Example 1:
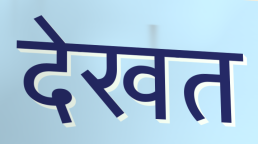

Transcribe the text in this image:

देखत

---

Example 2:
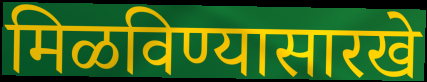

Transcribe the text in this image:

मिळविण्यासारखे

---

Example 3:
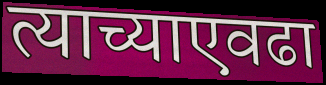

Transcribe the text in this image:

त्याच्याएवढा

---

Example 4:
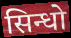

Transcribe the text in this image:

सिन्धो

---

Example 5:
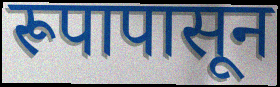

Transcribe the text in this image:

रूपापासून